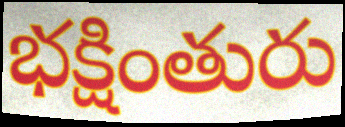
భక్షింతురు